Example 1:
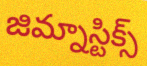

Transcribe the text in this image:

జిమ్నాస్టిక్స్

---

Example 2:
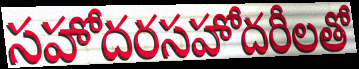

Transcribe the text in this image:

సహోదరసహోదరీలతో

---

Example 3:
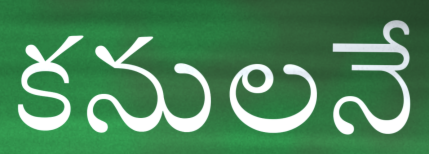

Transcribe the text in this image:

కనులనే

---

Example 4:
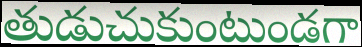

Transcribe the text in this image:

తుడుచుకుంటుండగా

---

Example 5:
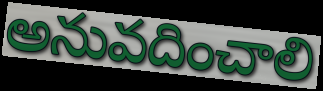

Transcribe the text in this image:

అనువదించాలి